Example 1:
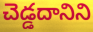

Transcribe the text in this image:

చెడ్డదానిని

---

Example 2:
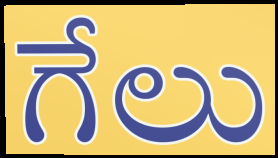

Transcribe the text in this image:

గేలు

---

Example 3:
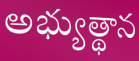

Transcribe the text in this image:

అభ్యుత్థాన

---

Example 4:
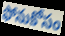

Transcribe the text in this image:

ఫోనుకోసం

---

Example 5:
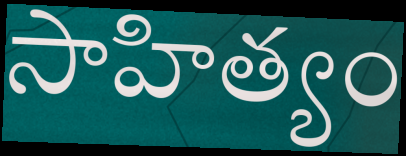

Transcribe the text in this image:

సాహిత్యం